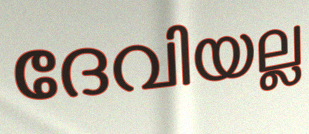
ദേവിയല്ല